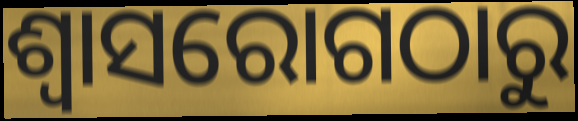
ଶ୍ୱାସରୋଗଠାରୁ